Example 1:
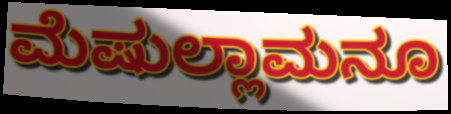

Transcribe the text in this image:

ಮೆಷುಲ್ಲಾಮನೂ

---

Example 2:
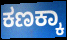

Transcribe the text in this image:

ಕಣಕ್ಕಾ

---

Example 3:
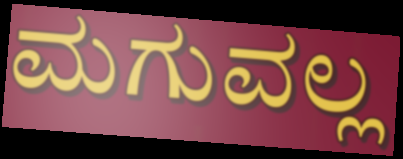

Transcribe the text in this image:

ಮಗುವಲ್ಲ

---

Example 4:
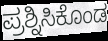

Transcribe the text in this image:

ಪ್ರಶ್ನಿಸಿಕೊಂಡ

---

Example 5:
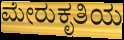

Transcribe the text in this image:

ಮೇರುಕೃತಿಯ